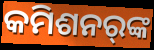
କମିଶନର୍‌ଙ୍କ